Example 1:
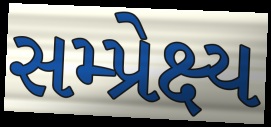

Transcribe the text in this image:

સમ્પ્રેક્ષ્ય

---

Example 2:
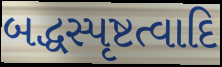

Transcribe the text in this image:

બદ્ધસ્પૃષ્ટત્વાદિ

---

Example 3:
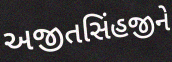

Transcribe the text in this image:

અજીતસિંહજીને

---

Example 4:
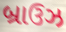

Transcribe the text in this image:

બ્રાઉઝ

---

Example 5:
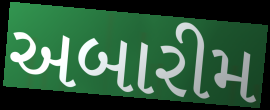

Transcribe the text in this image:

અબારીમ